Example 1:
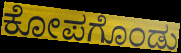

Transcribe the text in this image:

ಕೋಪಗೊಂಡು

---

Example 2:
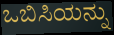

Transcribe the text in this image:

ಒಬಿಸಿಯನ್ನು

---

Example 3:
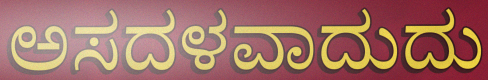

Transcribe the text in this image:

ಅಸದಳವಾದುದು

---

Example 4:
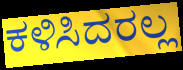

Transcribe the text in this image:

ಕಳಿಸಿದರಲ್ಲ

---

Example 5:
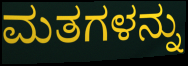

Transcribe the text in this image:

ಮತಗಳನ್ನು